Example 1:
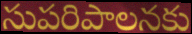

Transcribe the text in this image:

సుపరిపాలనకు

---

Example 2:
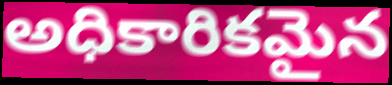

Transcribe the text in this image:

అధికారికమైన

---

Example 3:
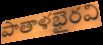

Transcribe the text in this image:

పాతాళభైరవి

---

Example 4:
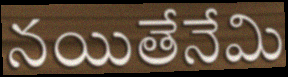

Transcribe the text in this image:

నయితేనేమి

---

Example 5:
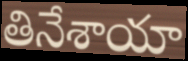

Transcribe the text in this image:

తినేశాయా